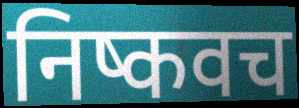
निष्कवच